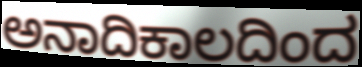
ಅನಾದಿಕಾಲದಿಂದ